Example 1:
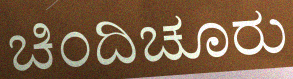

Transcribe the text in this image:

ಚಿಂದಿಚೂರು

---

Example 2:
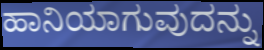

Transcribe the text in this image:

ಹಾನಿಯಾಗುವುದನ್ನು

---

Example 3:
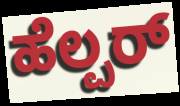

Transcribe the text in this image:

ಹೆಲ್ಪರ್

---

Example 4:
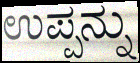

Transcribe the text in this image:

ಉಪ್ಪನ್ನು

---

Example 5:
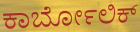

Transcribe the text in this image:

ಕಾರ್ಬೋಲಿಕ್